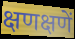
क्षणक्षणें